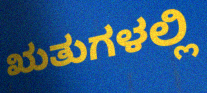
ಋತುಗಳಲ್ಲಿ